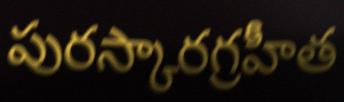
పురస్కారగ్రహీత